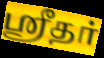
ஸ்ரீதர்